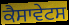
ਕੈਸਾਵੇਟਸ